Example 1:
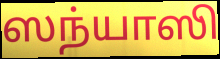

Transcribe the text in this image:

ஸந்யாஸி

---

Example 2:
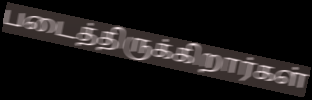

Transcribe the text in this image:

படைத்திருக்கிறார்கள்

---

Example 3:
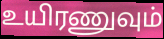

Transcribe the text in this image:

உயிரணுவும்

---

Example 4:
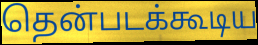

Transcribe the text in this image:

தென்படக்கூடிய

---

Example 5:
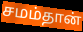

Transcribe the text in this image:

சமம்தான்